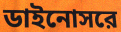
ডাইনোসরে